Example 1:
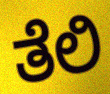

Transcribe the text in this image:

ತೆಲಿ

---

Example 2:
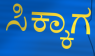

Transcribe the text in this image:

ಸಿಕ್ಕಾಗ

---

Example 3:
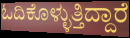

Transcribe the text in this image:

ಓದಿಕೊಳ್ಳುತ್ತಿದ್ದಾರೆ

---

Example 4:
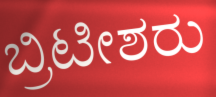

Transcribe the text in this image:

ಬ್ರಿಟೀಶರು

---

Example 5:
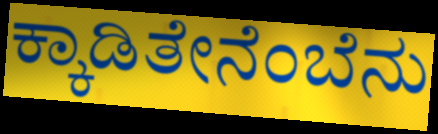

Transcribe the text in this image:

ಕ್ಕಾಡಿತೇನೆಂಬೆನು